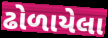
ઢોળાયેલા